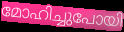
മോഹിച്ചുപോയി